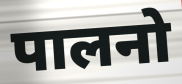
पालनो